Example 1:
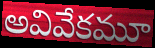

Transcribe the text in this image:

అవివేకమూ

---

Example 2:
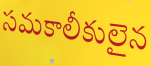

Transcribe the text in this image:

సమకాలీకులైన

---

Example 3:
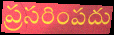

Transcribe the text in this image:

ప్రసరింపదు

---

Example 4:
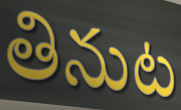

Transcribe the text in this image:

తినుట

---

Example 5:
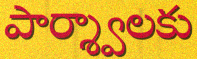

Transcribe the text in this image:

పార్శ్వాలకు